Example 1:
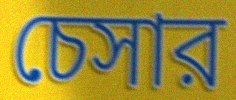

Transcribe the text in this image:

চেসার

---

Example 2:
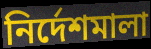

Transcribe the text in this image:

নির্দেশমালা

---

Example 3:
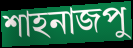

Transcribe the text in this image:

শাহনাজপু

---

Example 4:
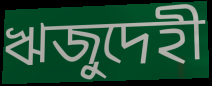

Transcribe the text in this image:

ঋজুদেহী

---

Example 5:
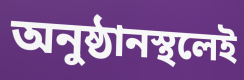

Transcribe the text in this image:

অনুষ্ঠানস্থলেই